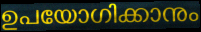
ഉപയോഗിക്കാനും